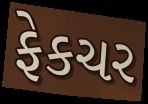
ફેકચર